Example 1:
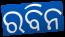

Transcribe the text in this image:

ରବିନ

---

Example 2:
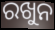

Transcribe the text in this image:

ରଖୁନ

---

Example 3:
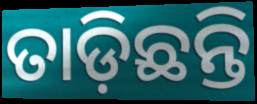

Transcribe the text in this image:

ତାଡ଼ିଛନ୍ତି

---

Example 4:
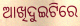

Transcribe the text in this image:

ଆଖିଦୁଇଟିରେ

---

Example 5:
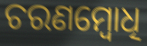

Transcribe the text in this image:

ଚରଣମ୍ବୋଧି